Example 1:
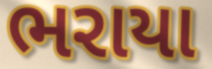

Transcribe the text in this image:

ભરાયા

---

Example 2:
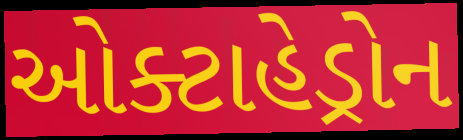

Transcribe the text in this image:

ઓક્ટાહેડ્રોન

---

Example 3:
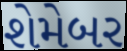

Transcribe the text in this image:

શેમેબર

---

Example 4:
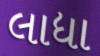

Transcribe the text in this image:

લાદ્યા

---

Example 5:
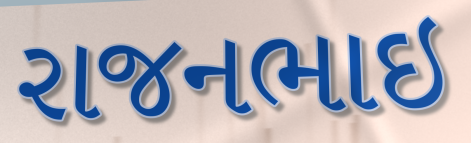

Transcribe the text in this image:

રાજનભાઇ